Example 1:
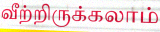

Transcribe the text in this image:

வீற்றிருக்கலாம்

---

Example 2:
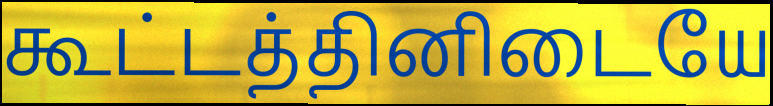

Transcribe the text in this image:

கூட்டத்தினிடையே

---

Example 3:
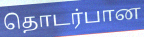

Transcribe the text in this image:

தொடர்பான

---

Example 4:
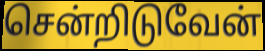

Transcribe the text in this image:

சென்றிடுவேன்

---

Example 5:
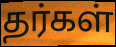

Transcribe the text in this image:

தர்கள்